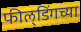
फील्डिंगच्या